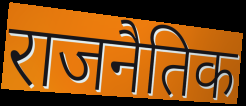
राजनैतिक